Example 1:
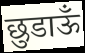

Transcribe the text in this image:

छुडाऊँ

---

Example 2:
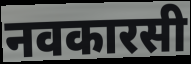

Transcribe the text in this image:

नवकारसी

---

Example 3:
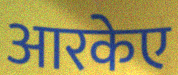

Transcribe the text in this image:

आरकेए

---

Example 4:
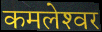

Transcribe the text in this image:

कमलेश्‍वर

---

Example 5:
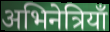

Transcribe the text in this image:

अभिनेत्रियाँ